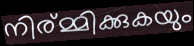
നിര്മ്മിക്കുകയും